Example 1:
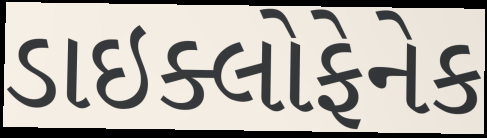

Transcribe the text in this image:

ડાઇક્લોફેનેક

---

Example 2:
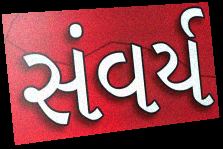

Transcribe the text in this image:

સંવર્ય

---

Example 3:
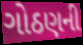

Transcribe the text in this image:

ગોઠણની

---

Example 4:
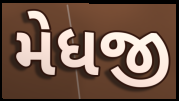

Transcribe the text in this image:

મેધજી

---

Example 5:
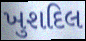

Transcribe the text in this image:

ખુશદિલ